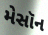
મેસૉન